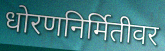
धोरणनिर्मितीवर